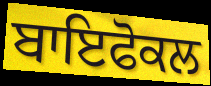
ਬਾਇਫੋਕਲ